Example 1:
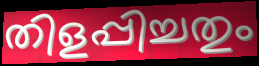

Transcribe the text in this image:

തിളപ്പിച്ചതും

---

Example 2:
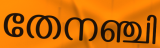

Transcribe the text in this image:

തേനഞ്ചി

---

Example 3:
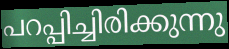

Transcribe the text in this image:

പറപ്പിച്ചിരിക്കുന്നു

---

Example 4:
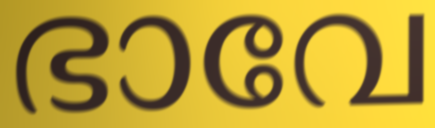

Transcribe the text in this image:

ഭാവേ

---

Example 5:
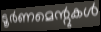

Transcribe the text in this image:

ടൂർണമെന്റുകൾ